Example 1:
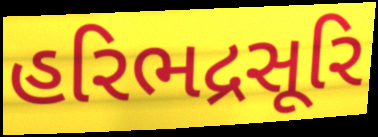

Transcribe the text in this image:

હરિભદ્રસૂરિ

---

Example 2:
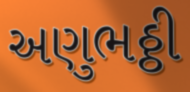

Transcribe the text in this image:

અણુભઠ્ઠી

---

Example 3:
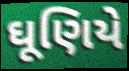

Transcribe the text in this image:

ઘૂણિયે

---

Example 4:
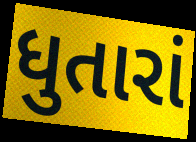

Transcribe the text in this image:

ધુતારાં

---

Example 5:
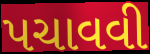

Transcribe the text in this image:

પચાવવી